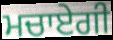
ਮਚਾਏਗੀ